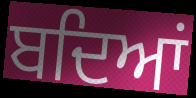
ਬਦਿਆਂ